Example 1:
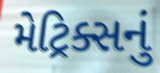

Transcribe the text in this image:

મેટ્રિક્સનું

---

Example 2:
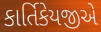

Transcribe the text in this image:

કાર્તિકેયજીએ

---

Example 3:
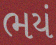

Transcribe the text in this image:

ભયં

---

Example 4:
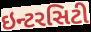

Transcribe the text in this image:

ઇન્ટરસિટી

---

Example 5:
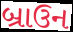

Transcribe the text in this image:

બ્રાઉન